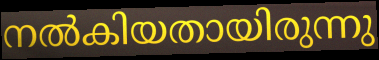
നൽകിയതായിരുന്നു